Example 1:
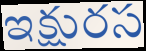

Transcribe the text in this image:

ఇక్షురస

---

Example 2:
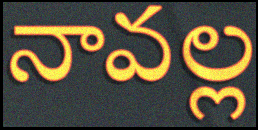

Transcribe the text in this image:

నావల్ల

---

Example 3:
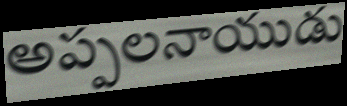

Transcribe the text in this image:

అప్పలనాయుడు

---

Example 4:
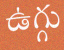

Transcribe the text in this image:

ఉగ్గు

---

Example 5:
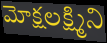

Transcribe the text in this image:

మోక్షలక్ష్మిని